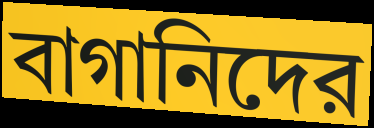
বাগানিদের